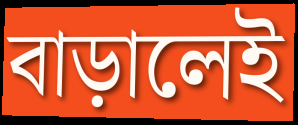
বাড়ালেই